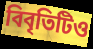
বিবৃতিটিও